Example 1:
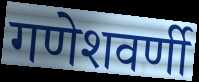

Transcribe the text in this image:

गणेशवर्णी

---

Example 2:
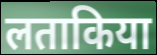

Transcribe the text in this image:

लताकिया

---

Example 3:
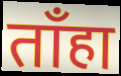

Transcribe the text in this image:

ताँहा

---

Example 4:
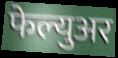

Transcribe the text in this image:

फेल्युअर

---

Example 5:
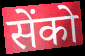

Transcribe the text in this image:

सेंको